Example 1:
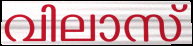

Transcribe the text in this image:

വിലാസ്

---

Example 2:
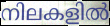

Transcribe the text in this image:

നിലകളിൽ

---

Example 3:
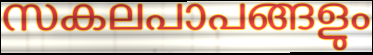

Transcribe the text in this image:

സകലപാപങ്ങളും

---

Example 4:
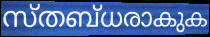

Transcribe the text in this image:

സ്തബ്ധരാകുക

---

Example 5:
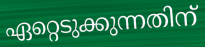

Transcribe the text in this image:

ഏറ്റെടുക്കുന്നതിന്